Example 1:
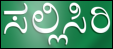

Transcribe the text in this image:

ಸಲ್ಲಿಸಿರಿ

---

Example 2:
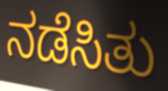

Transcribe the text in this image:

ನಡೆಸಿತು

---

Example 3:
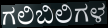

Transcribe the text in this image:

ಗಲಿಬಿಲಿಗಳ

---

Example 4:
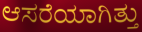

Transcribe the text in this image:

ಆಸರೆಯಾಗಿತ್ತು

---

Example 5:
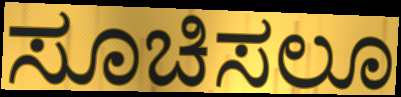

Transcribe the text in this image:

ಸೂಚಿಸಲೂ